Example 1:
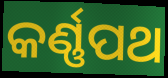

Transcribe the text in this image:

କର୍ଣ୍ଣପଥ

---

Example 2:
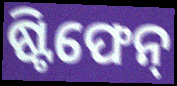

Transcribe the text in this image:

ଷ୍ଟିଫେନ୍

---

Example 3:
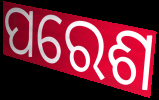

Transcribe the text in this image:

ପରେଶ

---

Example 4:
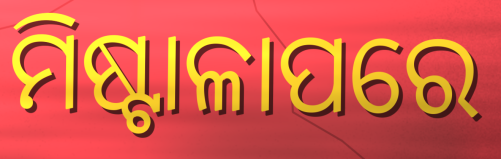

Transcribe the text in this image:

ମିଷ୍ଟାଳାପରେ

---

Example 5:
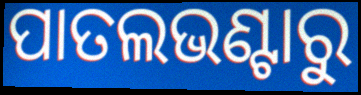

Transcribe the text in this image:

ପାତଲଭଣ୍ଟାରୁ